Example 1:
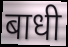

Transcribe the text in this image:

बाधी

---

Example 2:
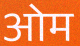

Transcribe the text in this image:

ओम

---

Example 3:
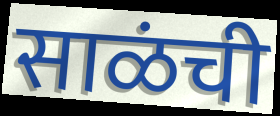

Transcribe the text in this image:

साळंची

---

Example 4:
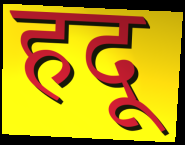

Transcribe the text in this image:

हदू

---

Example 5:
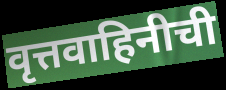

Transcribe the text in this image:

वृत्तवाहिनीची